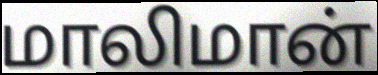
மாலிமான்